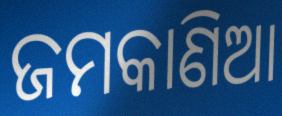
ଜମକାଣିଆ